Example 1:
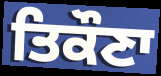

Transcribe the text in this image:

ਤਿਕੌਣਾ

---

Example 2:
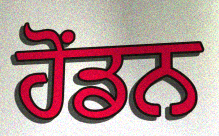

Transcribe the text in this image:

ਹੋਂਡਨ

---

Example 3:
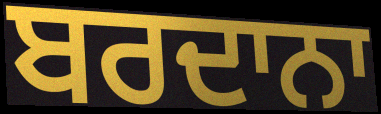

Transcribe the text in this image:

ਬਰਦਾਨਾ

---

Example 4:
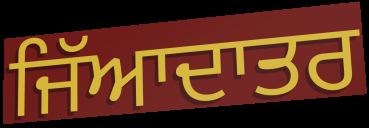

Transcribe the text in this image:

ਜਿੱਆਦਾਤਰ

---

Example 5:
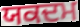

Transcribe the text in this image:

ਯਕਦਮ